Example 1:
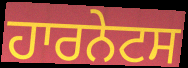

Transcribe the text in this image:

ਹਾਰਨੇਟਸ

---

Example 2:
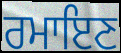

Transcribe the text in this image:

ਰਮਾਇਣ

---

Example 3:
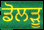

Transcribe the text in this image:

ਡੋਲੜੂ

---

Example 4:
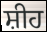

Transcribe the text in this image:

ਸ਼ੀਹ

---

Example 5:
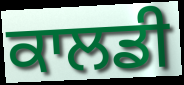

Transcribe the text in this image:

ਕਾਲਡੀ